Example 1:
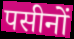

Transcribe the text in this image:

पसीनों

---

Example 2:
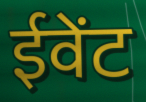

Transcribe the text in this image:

ईवेंट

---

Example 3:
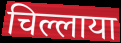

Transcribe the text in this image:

चिल्लाया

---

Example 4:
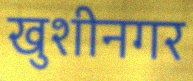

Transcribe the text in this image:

खुशीनगर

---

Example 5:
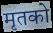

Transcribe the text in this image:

मृतको